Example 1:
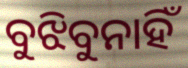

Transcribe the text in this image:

ବୁଝିବୁନାହିଁ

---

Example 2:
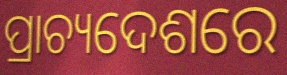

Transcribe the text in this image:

ପ୍ରାଚ୍ୟଦେଶରେ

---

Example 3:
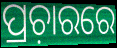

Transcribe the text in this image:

ପ୍ରଚ଼ାରରେ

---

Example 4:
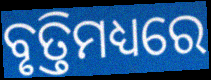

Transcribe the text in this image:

ବୃତ୍ତିମଧ୍ୟରେ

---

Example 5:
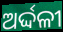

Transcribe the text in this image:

ଅର୍ଦ୍ଦଳୀ